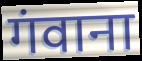
गंवाना